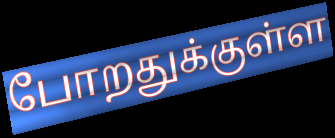
போறதுக்குள்ள